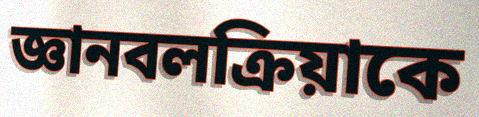
জ্ঞানবলক্রিয়াকে